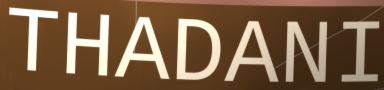
THADANI